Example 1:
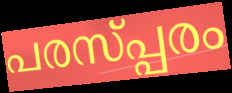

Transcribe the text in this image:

പരസ്പ്പരം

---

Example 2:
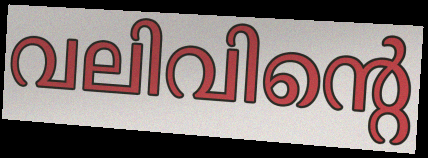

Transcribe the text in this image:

വലിവിന്റെ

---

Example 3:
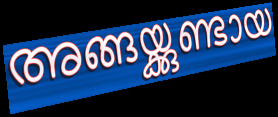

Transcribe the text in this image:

അങ്ങയ്ക്കുണ്ടായ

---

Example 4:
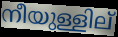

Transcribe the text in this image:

നീയുള്ളില്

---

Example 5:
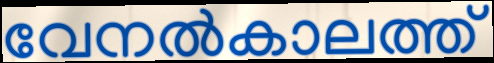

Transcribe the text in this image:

വേനൽകാലത്ത്